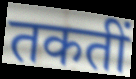
तकतीं